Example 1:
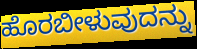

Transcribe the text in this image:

ಹೊರಬೀಳುವುದನ್ನು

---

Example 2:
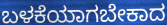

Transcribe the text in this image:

ಬಳಕೆಯಾಗಬೇಕಾದ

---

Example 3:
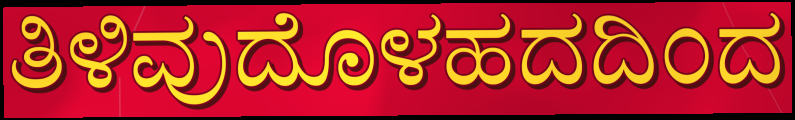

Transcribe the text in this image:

ತಿಳಿವುದೊಳಹದದಿಂದ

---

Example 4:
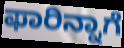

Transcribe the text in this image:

ಫಾರಿನ್ನಾಗೆ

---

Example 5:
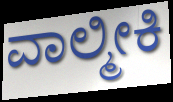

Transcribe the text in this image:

ವಾಲ್ಮೀಕಿ